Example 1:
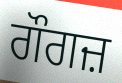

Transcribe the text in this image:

ਗੌਗਜ਼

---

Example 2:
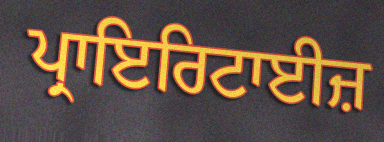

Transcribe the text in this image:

ਪ੍ਰਾਇਰਿਟਾਈਜ਼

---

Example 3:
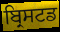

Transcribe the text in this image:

ਬ੍ਰਿਸਟਡ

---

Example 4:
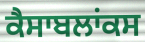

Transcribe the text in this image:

ਕੈਸਾਬਲਾਂਕਸ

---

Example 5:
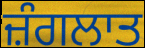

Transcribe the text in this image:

ਜ਼ੰਗਲਾਤ